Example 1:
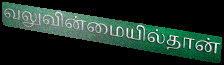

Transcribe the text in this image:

வலுவின்மையில்தான்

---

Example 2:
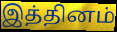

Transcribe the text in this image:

இத்தினம்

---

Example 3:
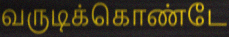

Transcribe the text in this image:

வருடிக்கொண்டே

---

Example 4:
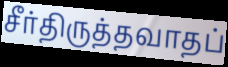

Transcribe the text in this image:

சீர்திருத்தவாதப்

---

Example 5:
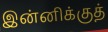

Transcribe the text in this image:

இன்னிக்குத்